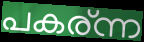
പകര്ന്ന